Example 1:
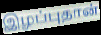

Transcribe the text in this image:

இழப்புதான்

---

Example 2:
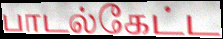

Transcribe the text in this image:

பாடல்கேட்ட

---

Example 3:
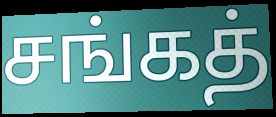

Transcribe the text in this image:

சங்கத்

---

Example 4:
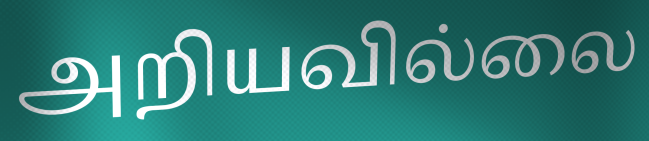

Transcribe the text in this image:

அறியவில்லை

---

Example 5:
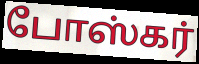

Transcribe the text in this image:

போஸ்கர்